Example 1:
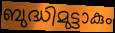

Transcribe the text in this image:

ബുദ്ധിമുട്ടാകും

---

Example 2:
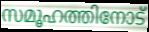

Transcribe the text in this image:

സമൂഹത്തിനോട്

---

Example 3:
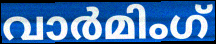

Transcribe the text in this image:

വാർമിംഗ്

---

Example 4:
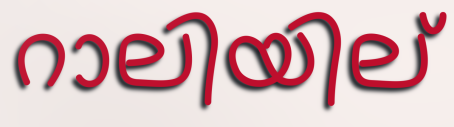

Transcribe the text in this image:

റാലിയില്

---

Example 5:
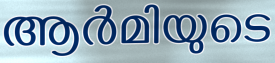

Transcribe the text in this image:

ആർമിയുടെ